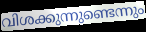
വിശക്കുന്നുണ്ടെന്നും